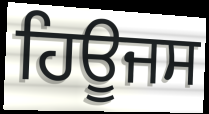
ਹਿਊਜਸ